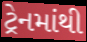
ટ્રેનમાંથી